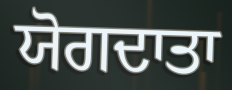
ਯੋਗਦਾਤਾ